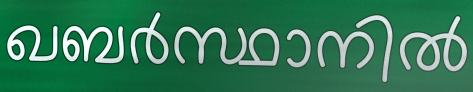
ഖബർസ്ഥാനിൽ